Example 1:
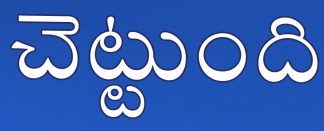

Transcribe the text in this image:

చెట్టుంది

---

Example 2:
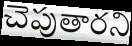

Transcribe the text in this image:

చెపుతారని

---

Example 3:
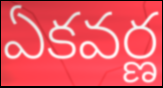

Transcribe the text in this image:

ఏకవర్ణ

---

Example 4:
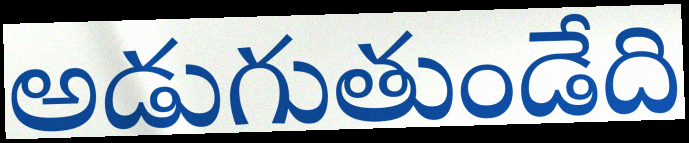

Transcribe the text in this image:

అడుగుతుండేది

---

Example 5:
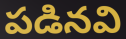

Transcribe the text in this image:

పడినవి